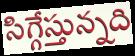
సిగ్గేస్తున్నది